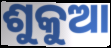
ଶୁକୁଆ